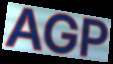
AGP